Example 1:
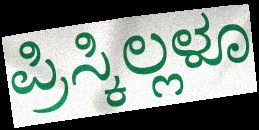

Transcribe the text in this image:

ಪ್ರಿಸ್ಕಿಲ್ಲಳೂ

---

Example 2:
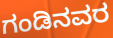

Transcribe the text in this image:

ಗಂಡಿನವರ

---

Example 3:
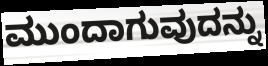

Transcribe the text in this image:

ಮುಂದಾಗುವುದನ್ನು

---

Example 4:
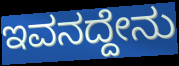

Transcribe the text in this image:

ಇವನದ್ದೇನು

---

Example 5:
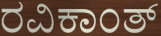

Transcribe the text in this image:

ರವಿಕಾಂತ್